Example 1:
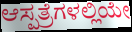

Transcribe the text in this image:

ಆಸ್ಪತ್ರೆಗಳಲ್ಲಿಯೇ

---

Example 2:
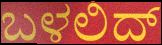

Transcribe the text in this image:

ಬಳಲಿದ್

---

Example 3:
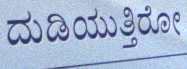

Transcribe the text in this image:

ದುಡಿಯುತ್ತಿರೋ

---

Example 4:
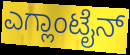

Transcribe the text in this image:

ಎಗ್ಲಾಂಟೈನ್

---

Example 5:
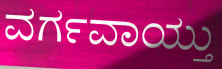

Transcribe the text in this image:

ವರ್ಗವಾಯ್ತು